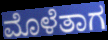
ಮೊಳೆತಾಗ